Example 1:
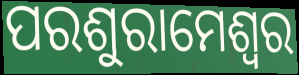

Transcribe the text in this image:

ପରଶୁରାମେଶ୍ୱର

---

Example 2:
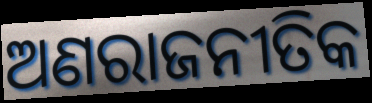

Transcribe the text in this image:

ଅଣରାଜନୀତିକ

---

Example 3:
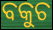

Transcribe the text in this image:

ବକୁଚ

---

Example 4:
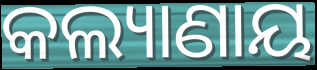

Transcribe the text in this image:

କଲ୍ୟାଣାୟ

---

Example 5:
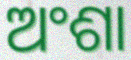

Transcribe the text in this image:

ଅଂଶା